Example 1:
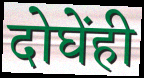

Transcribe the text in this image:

दोघेंही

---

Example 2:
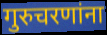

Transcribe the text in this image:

गुरुचरणांना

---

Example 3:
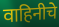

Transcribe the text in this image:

वाहिनीचे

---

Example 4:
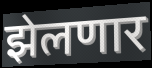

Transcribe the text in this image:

झेलणार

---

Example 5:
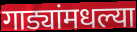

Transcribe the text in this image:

गाड्यांमधल्या